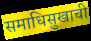
समाधिसुखाची